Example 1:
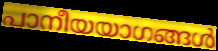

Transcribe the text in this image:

പാനീയയാഗങ്ങൾ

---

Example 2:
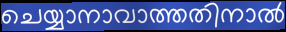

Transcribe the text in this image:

ചെയ്യാനാവാത്തതിനാൽ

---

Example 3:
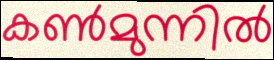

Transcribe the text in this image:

കൺമുന്നിൽ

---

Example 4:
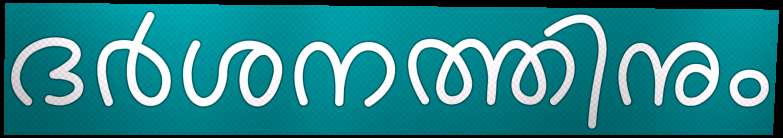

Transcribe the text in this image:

ദർശനത്തിനും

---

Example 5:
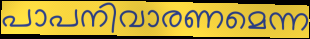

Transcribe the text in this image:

പാപനിവാരണമെന്ന